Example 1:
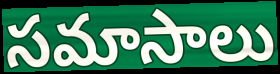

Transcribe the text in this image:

సమాసాలు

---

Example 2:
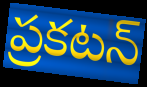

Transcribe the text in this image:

ప్రకటన్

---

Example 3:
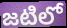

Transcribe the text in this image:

జటిలో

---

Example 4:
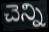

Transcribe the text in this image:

చెన్ని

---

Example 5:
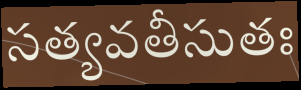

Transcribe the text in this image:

సత్యవతీసుతః